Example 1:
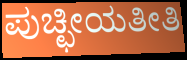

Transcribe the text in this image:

ಪುಚ್ಛೀಯತೀತಿ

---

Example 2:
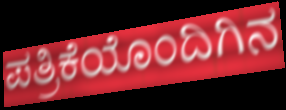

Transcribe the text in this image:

ಪತ್ರಿಕೆಯೊಂದಿಗಿನ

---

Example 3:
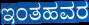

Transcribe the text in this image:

ಇಂತಹವರ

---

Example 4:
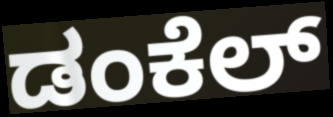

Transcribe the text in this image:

ಡಂಕೆಲ್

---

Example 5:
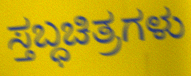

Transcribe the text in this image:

ಸ್ತಬ್ಧಚಿತ್ರಗಳು